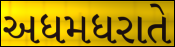
અધમધરાતે